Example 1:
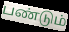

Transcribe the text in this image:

பண்டும்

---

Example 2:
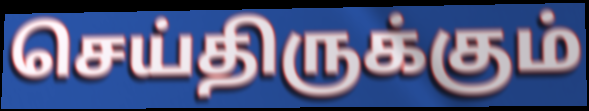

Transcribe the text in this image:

செய்திருக்கும்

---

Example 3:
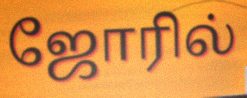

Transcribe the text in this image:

ஜோரில்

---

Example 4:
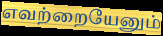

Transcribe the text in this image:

எவற்றையேனும்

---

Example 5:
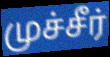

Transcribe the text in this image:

முச்சீர்